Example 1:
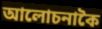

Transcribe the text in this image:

আলোচনাকৈ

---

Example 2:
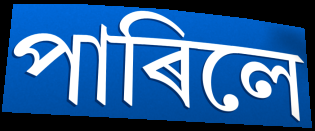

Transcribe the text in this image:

পাৰিলে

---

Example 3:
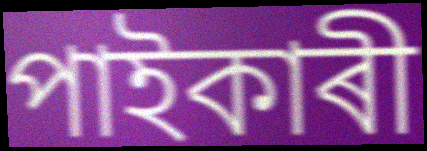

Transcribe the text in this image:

পাইকাৰী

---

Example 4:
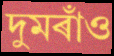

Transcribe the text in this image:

দুমৰাঁও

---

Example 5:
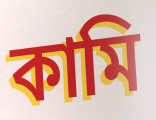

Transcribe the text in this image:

কামি